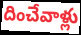
దించేవాళ్లు